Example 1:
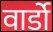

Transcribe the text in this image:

वार्डो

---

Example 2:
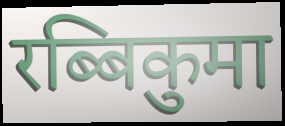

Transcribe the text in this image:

रब्बिकुमा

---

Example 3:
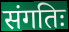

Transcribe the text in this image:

संगतिः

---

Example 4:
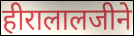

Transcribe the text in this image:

हीरालालजीने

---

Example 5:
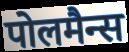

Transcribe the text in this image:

पोलमैन्स